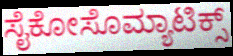
ಸೈಕೋಸೊಮ್ಯಾಟಿಕ್ಸ್